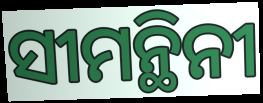
ସୀମନ୍ଥିନୀ